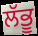
ਲੱਭੂ